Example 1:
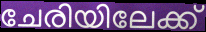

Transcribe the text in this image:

ചേരിയിലേക്ക്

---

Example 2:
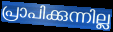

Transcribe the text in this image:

പ്രാപിക്കുന്നില്ല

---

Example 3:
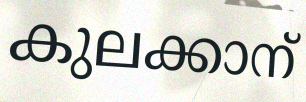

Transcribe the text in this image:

കുലക്കാന്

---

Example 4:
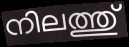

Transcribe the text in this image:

നിലത്തു്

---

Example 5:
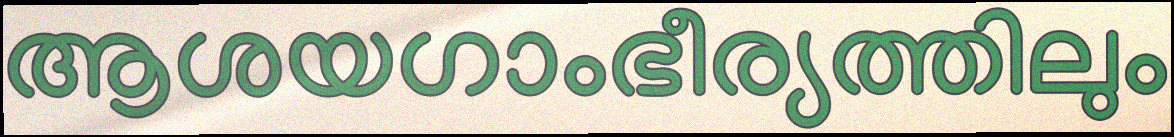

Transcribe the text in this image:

ആശയഗാംഭീര്യത്തിലും